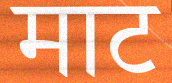
माट